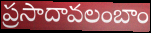
ప్రసాదావలంబాం